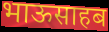
भाऊसाहब